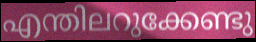
എന്തിലറുക്കേണ്ടു